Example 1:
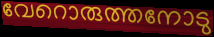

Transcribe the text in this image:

വേറൊരുത്തനോടു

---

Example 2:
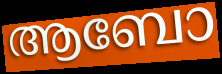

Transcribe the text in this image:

ആബോ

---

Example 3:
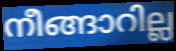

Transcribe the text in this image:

നീങ്ങാറില്ല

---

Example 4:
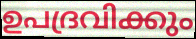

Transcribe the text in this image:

ഉപദ്രവിക്കും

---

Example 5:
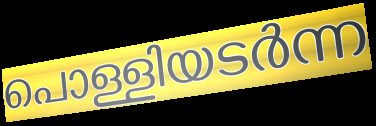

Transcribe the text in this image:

പൊള്ളിയടർന്ന